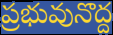
ప్రభువునొద్ద